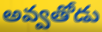
అవ్వతోడు